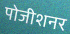
पोजीशनर